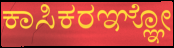
ಕಾಸಿಕರಞ್ಞೋ